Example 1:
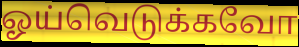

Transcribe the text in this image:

ஓய்வெடுக்கவோ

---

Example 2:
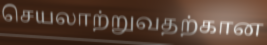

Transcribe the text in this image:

செயலாற்றுவதற்கான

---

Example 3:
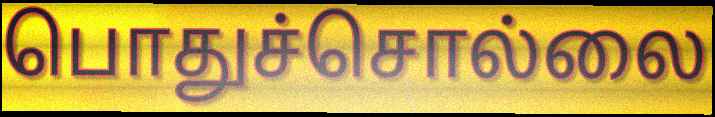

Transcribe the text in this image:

பொதுச்சொல்லை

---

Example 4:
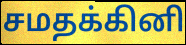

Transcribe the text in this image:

சமதக்கினி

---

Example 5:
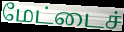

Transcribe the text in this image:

மேட்டைச்